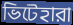
ভিটেহারা